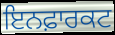
ਇਨਫ਼ਾਰਕਟ